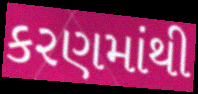
કરણમાંથી